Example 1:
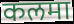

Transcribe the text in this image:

कलमा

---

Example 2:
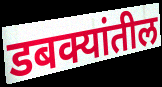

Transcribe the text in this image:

डबक्यांतील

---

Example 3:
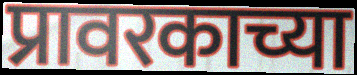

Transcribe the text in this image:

प्रावरकाच्या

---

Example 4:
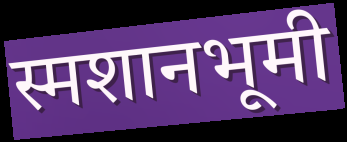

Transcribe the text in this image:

स्मशानभूमी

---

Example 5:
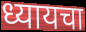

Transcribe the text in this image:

ध्यायचा